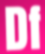
Df